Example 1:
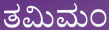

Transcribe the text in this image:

ತಮಿಮಂ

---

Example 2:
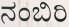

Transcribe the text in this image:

ನಂಬಿರಿ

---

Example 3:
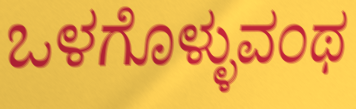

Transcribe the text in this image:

ಒಳಗೊಳ್ಳುವಂಥ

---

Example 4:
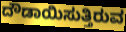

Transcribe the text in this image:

ದೌಡಾಯಿಸುತ್ತಿರುವ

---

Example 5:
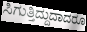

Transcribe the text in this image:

ಸಿಗುತ್ತಿದ್ದುದಾದರೂ